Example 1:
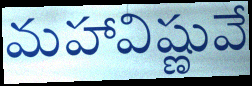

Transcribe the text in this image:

మహావిష్ణువే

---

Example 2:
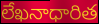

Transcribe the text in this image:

లేఖనాధారిత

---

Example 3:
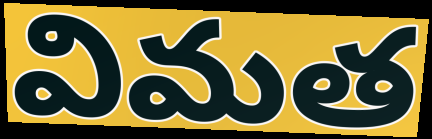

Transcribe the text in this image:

విమత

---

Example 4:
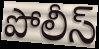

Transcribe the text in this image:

పోలీస్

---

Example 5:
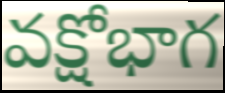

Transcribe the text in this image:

వక్షోభాగ